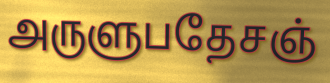
அருளுபதேசஞ்